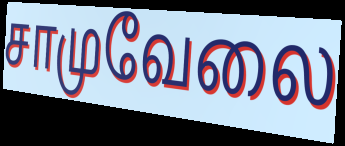
சாமுவேலை